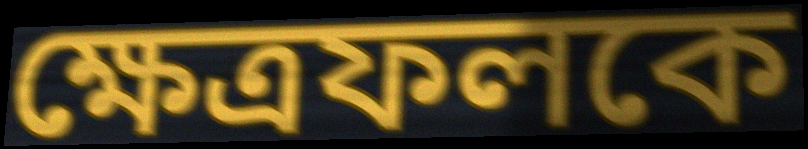
ক্ষেত্রফলকে